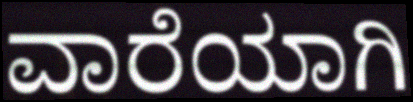
ವಾರೆಯಾಗಿ